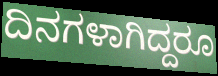
ದಿನಗಳಾಗಿದ್ದರೂ